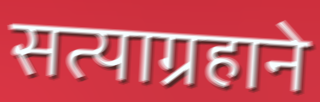
सत्याग्रहाने